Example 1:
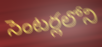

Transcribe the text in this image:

సెంటర్లలోని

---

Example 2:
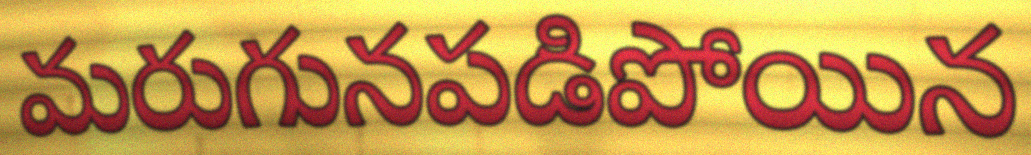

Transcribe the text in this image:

మరుగునపడిపోయిన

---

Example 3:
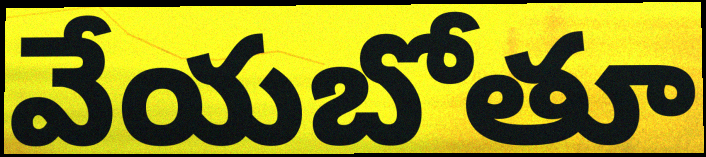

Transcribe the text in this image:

వేయబోతూ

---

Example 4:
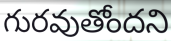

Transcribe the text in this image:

గురవుతోందని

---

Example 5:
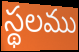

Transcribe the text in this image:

స్థలము